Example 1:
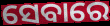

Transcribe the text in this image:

ସେବାରେ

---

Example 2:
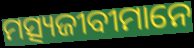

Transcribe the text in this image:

ମତ୍ସ୍ୟଜୀବୀମାନେ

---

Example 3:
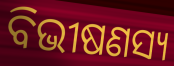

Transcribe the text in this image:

ବିଭୀଷଣସ୍ୟ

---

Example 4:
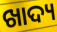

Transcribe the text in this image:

ଖାଦ୍ୟ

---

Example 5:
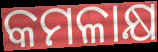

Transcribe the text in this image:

କମଳାକ୍ଷ